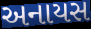
અનાયસ